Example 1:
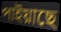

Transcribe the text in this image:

পাইয়াছে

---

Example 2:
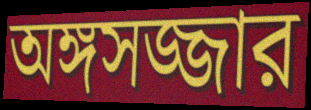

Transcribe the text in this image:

অঙ্গসজ্জার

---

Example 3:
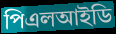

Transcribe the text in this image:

পিএলআইডি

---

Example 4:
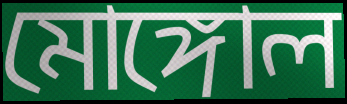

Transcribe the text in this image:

মোঙ্গোল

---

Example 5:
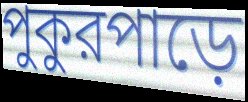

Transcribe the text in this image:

পুকুরপাড়ে